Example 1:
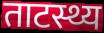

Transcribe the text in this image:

ताटस्थ्य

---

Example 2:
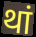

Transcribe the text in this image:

थां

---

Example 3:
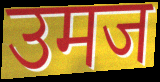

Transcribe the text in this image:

उमज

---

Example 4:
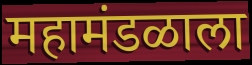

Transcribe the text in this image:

महामंडळाला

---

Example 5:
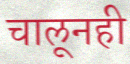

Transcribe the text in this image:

चालूनही